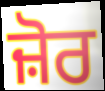
ਜ਼ੋਰ